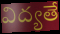
విద్యతే